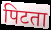
पिटता